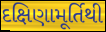
દક્ષિણામૂર્તિથી